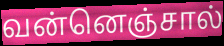
வன்னெஞ்சால்